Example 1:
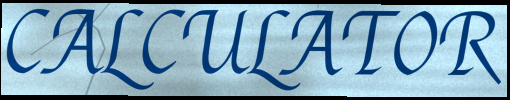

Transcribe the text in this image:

CALCULATOR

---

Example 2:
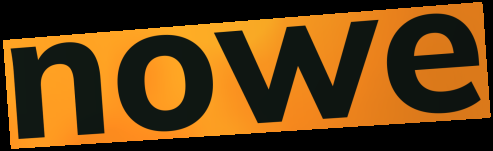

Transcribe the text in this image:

nowe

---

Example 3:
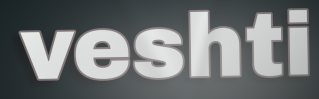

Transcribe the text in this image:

veshti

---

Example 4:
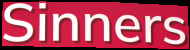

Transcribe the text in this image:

Sinners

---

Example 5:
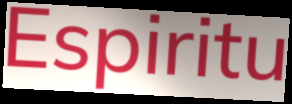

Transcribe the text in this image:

Espiritu